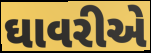
ઘાવરીએ